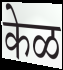
केळ